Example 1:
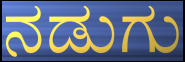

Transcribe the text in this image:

ನಡುಗು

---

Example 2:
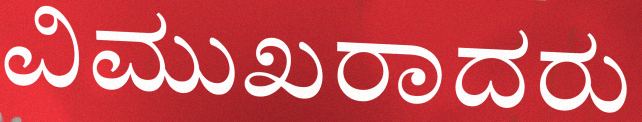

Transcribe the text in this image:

ವಿಮುಖರಾದರು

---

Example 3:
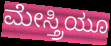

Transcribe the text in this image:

ಮೇಸ್ತ್ರಿಯೂ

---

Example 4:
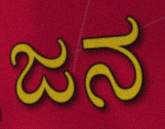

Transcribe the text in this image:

ಜನ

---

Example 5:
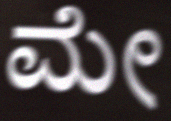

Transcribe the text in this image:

ಮೇ